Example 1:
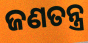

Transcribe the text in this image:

ଜଣତନ୍ତ୍ର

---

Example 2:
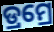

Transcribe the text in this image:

ଡ୍ରମ୍ରେ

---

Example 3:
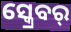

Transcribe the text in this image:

ସ୍କ୍ରେବର୍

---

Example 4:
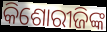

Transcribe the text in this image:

କିଶୋରୀଜିଙ୍କ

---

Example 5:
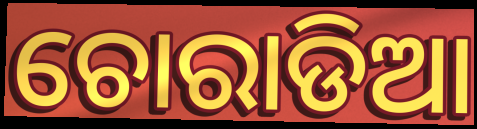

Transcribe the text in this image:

ଚୋରାଡିଆ